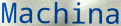
Machina